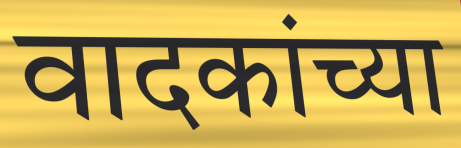
वादकांच्या